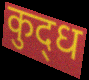
कुद्ध